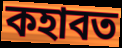
কহাবত